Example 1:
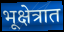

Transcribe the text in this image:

भूक्षेत्रात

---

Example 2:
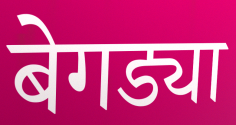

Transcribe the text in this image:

बेगड्या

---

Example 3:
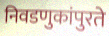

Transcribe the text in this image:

निवडणुकांपुरते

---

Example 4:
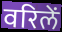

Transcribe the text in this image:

वरिलें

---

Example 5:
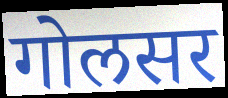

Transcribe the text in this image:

गोलसर